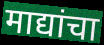
माद्यांचा